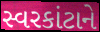
સ્વરકાંટાને